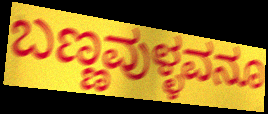
ಬಣ್ಣವುಳ್ಳವನೂ